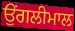
ਉਂਗਲੀਮਾਲ